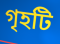
গৃহটি